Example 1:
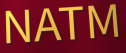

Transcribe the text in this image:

NATM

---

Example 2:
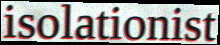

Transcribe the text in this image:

isolationist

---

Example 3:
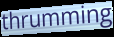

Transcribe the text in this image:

thrumming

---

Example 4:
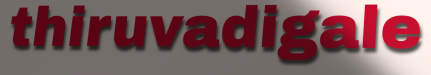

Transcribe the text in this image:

thiruvadigale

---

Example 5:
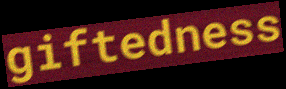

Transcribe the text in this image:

giftedness